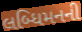
લબ્ધિમનની